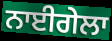
ਨਾਈਗੇਲਾ